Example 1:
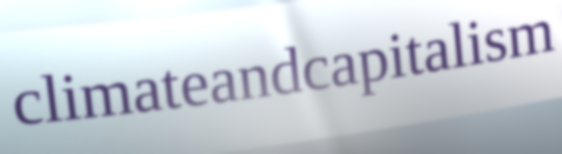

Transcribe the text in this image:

climateandcapitalism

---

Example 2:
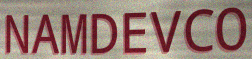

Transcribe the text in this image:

NAMDEVCO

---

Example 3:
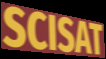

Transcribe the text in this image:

SCISAT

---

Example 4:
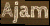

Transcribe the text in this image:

Ajam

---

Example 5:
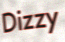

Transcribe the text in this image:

Dizzy